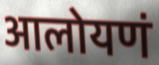
आलोयणं